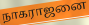
நாகராஜனை